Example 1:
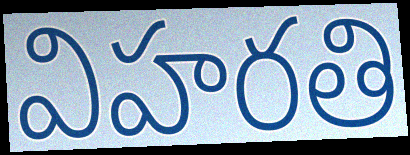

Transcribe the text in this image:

విహరతి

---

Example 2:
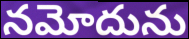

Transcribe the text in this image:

నమోదును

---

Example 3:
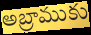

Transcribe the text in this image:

అబ్రాముకు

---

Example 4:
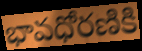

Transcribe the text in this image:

భావధోరణికి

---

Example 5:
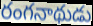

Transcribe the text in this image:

రంగనాథుడు